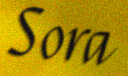
Sora